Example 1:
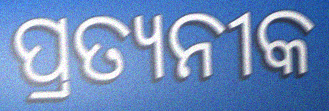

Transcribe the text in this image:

ପ୍ରତ୍ୟନୀକ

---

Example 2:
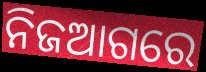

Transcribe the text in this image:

ନିଜଆଗରେ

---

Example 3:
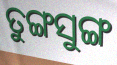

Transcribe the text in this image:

ତୁଙ୍ଗସୁଙ୍ଗ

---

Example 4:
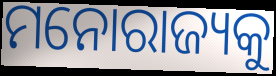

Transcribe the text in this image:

ମନୋରାଜ୍ୟକୁ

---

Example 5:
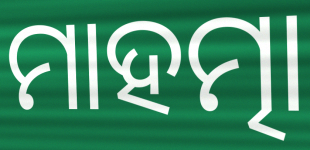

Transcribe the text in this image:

ମାହତ୍ମା